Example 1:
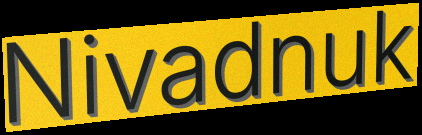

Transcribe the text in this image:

Nivadnuk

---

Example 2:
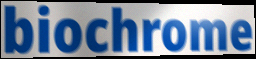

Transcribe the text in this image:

biochrome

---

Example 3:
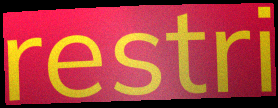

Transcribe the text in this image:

restri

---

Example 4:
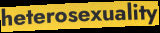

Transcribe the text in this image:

heterosexuality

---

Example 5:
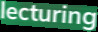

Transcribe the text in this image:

lecturing